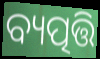
ବ୍ୟତ୍ପତ୍ତି